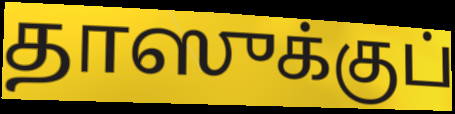
தாஸுக்குப்